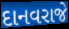
દાનવરાજે